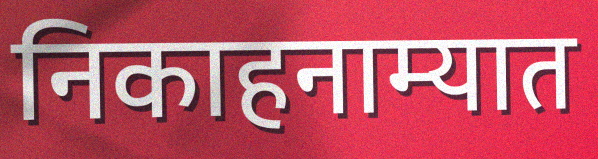
निकाहनाम्यात